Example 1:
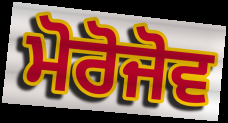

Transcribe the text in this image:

ਮੋਰੋਜੋਵ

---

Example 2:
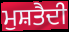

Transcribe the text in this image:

ਮੁਸ਼ਤੈਦੀ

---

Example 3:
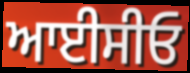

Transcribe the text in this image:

ਆਈਸੀਓ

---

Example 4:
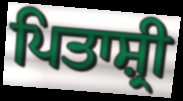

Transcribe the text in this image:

ਪਿਤਾਸ਼੍ਰੀ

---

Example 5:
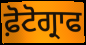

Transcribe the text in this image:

ਫ਼ੋਟੋਗ੍ਰਾਫ